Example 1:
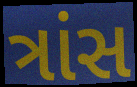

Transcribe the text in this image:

ત્રાંસ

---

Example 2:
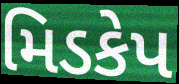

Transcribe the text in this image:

મિડકેપ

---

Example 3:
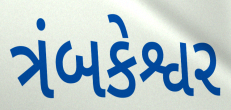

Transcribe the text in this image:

ત્રંબકેશ્વર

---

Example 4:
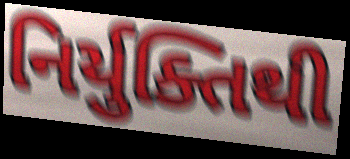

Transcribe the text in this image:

નિર્યુક્તિથી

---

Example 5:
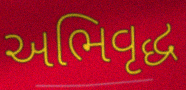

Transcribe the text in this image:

અભિવૃદ્ધ